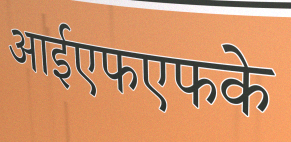
आईएफएफके